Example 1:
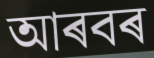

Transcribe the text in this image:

আৰবৰ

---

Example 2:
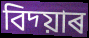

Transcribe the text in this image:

বিদ্য়াৰ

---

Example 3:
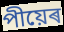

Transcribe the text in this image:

পীয়েৰ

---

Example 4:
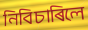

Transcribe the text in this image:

নিবিচাৰিলে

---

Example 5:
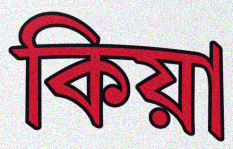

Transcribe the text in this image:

কিয়া